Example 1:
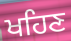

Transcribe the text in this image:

ਖਹਿਣ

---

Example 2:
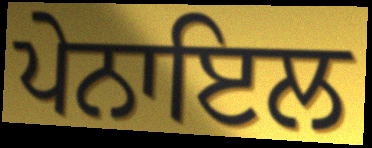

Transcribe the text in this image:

ਪੇਨਾਇਲ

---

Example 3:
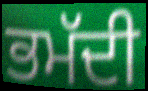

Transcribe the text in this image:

ਭਮੱਦੀ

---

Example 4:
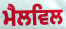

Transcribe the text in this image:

ਮੈਲਵਿਲ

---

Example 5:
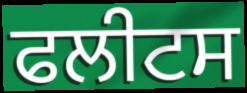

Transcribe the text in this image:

ਫਲੀਟਸ